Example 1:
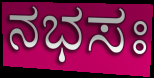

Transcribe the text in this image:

ನಭಸಃ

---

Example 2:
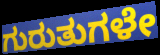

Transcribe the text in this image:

ಗುರುತುಗಳೇ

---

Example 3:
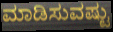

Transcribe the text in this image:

ಮಾಡಿಸುವಷ್ಟು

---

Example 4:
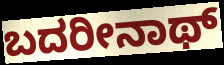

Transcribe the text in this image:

ಬದರೀನಾಥ್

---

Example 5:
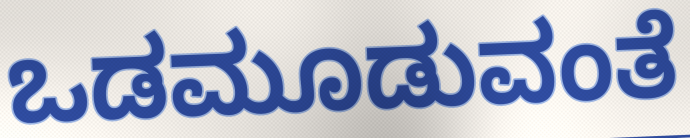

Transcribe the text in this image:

ಒಡಮೂಡುವಂತೆ